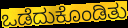
ಒಡೆದುಕೊಂಡಿತು